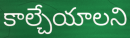
కాల్చేయాలని